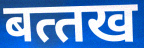
बत्‍तख